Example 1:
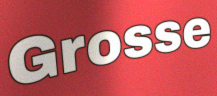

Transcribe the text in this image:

Grosse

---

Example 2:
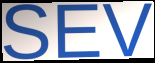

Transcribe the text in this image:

SEV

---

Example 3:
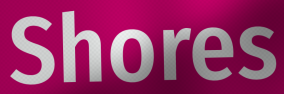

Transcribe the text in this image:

Shores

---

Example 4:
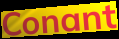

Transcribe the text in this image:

Conant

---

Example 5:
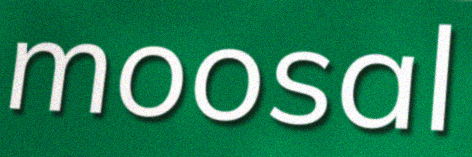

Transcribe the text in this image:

moosal